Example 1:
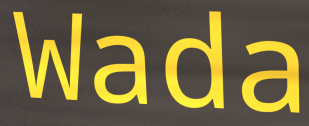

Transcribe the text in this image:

Wada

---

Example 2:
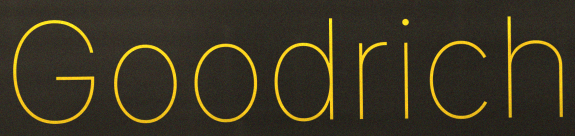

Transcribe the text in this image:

Goodrich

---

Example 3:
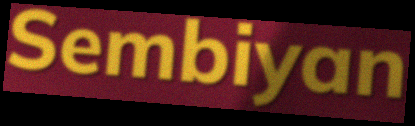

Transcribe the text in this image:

Sembiyan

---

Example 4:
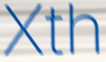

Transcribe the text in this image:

Xth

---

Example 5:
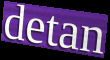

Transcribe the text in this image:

detan